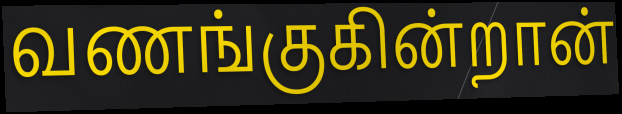
வணங்குகின்றான்